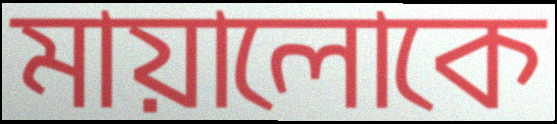
মায়ালোকে